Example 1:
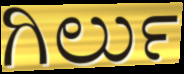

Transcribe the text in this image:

ಗಿರ್ಲು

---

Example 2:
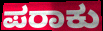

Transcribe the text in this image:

ಪರಾಕು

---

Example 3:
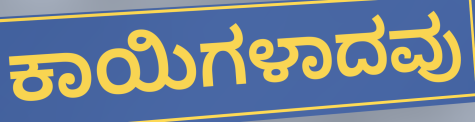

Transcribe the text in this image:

ಕಾಯಿಗಳಾದವು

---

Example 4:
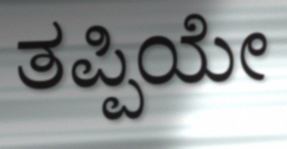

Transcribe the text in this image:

ತಪ್ಪಿಯೇ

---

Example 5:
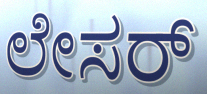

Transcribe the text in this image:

ಲೇಸರ್